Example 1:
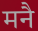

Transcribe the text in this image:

मनै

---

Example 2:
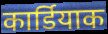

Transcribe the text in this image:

कार्डियाक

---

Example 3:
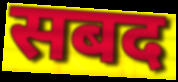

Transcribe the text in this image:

सबद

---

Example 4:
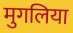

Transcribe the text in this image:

मुगलिया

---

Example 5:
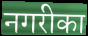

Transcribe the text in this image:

नगरीका